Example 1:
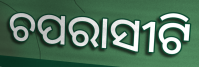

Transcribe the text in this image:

ଚପରାସୀଟି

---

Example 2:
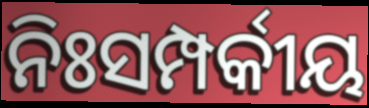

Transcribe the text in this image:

ନିଃସମ୍ପର୍କୀୟ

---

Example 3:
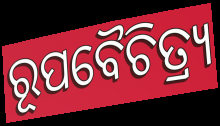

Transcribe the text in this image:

ରୂପବୈଚିତ୍ର୍ୟ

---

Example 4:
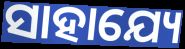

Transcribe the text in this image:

ସାହାଯ୍ୟେ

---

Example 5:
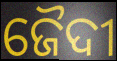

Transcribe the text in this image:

ଜୈଦୀ